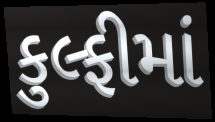
કુલ્ફીમાં